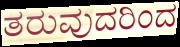
ತರುವುದರಿಂದ